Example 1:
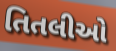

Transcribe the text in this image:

તિતલીઓ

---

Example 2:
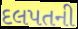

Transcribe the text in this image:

દલપતની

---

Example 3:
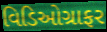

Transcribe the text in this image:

વિડિઓગ્રાફર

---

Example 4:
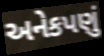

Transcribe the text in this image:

અનેકપણું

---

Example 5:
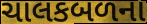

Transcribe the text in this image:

ચાલકબળના